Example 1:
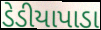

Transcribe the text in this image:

ડેડીયાપાડા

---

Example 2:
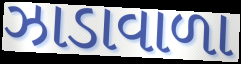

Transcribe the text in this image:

ઝાડાવાળા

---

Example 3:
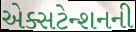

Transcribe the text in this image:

એક્સટેન્શનની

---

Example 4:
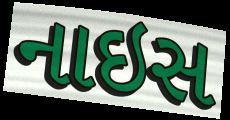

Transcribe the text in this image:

નાઇસ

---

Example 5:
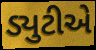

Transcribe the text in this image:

ડ્યુટીએ